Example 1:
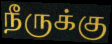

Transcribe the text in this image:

நீருக்கு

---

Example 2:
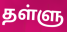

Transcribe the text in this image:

தள்ளு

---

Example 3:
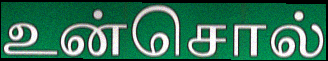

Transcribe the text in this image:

உன்சொல்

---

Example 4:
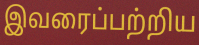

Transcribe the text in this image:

இவரைப்பற்றிய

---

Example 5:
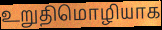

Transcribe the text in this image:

உறுதிமொழியாக